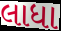
લાધા